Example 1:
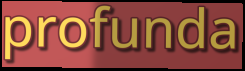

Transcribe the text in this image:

profunda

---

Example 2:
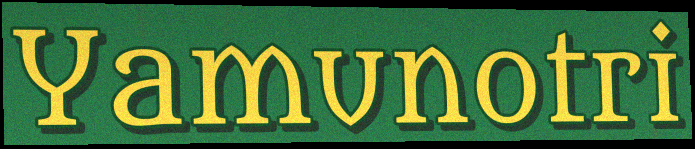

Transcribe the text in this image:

Yamunotri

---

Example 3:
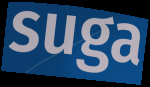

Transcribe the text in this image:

suga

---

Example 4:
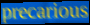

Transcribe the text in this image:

precarious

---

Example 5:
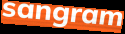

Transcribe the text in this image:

sangram